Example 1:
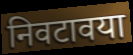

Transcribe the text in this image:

निवटावया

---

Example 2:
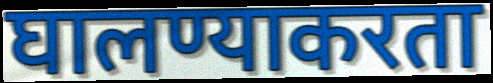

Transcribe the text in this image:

घालण्याकरता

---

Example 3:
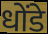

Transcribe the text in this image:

धोंडे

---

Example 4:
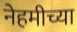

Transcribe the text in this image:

नेहमीच्या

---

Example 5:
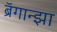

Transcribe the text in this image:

ब्रॅगान्झा